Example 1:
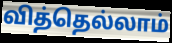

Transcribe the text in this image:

வித்தெல்லாம்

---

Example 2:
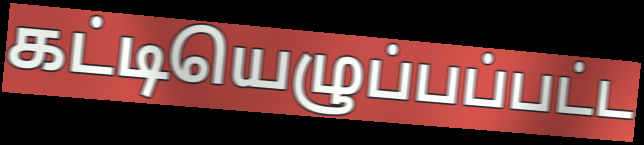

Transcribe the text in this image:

கட்டியெழுப்பப்பட்ட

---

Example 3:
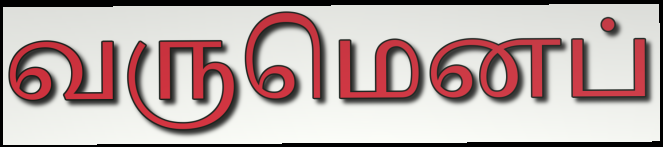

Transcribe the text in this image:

வருமெனப்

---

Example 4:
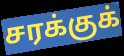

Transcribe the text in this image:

சரக்குக்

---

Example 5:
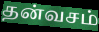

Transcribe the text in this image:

தன்வசம்